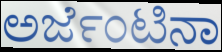
ಅರ್ಜೆಂಟಿನಾ